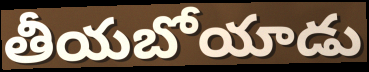
తీయబోయాడు